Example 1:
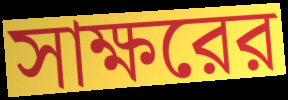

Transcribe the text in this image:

সাক্ষরের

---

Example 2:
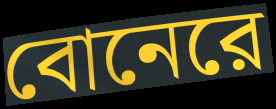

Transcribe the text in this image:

বোনেরে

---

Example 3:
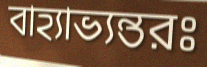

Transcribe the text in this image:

বাহ্যাভ্যন্তরঃ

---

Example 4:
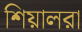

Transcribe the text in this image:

শিয়ালরা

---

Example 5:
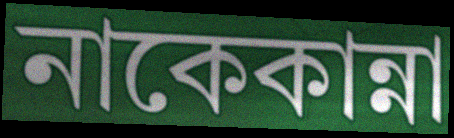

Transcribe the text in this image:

নাকেকান্না